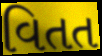
વિતત